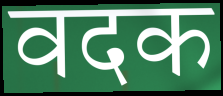
वदक